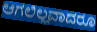
ಆಗಲಿಲ್ಲವಾದರೂ